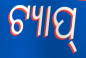
ଟ୍ୟାପ୍